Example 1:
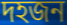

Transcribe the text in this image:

দহজন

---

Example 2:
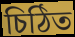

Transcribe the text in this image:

চিঠিত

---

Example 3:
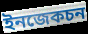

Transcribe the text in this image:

ইনজেকচন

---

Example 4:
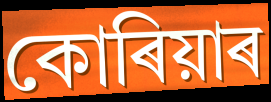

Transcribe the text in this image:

কোৰিয়াৰ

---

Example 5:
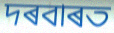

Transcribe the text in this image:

দৰবাৰত